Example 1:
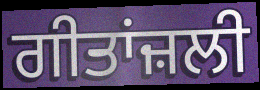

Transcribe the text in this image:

ਗੀਤਾਂਜ਼ਲੀ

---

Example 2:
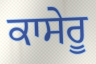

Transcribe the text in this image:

ਕਾਸੇਰੂ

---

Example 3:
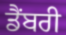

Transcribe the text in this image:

ਡੈਂਬਰੀ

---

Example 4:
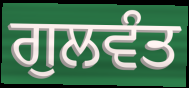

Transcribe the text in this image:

ਗੁਲਵੰਤ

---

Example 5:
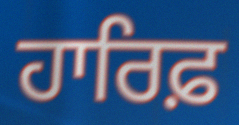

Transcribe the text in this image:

ਹਾਰਿਫ਼